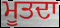
ਮੂਤਦਾ